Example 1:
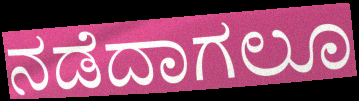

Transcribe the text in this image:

ನಡೆದಾಗಲೂ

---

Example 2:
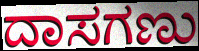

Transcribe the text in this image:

ದಾಸಗಣು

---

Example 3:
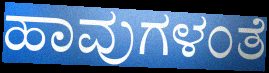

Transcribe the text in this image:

ಹಾವುಗಳಂತೆ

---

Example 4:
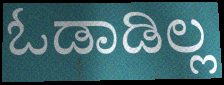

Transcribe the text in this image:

ಓಡಾಡಿಲ್ಲ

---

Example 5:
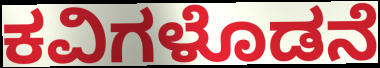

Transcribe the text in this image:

ಕವಿಗಳೊಡನೆ